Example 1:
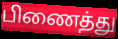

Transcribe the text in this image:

பிணைத்து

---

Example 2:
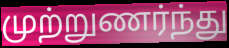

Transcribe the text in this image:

முற்றுணர்ந்து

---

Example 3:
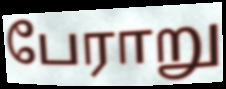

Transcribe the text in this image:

பேராறு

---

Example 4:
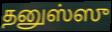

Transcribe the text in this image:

தனுஸ்ஸு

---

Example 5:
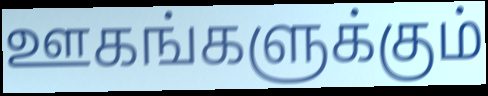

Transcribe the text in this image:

ஊகங்களுக்கும்